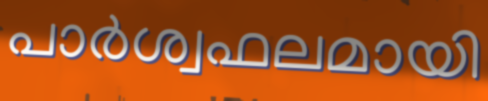
പാർശ്വഫലമായി